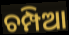
ଚମ୍ପିଆ